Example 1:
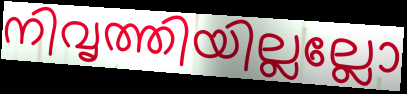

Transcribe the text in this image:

നിവൃത്തിയില്ലല്ലോ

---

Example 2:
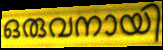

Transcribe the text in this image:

ഒരുവനായി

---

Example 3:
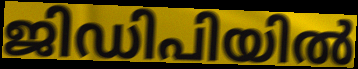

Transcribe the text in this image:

ജിഡിപിയിൽ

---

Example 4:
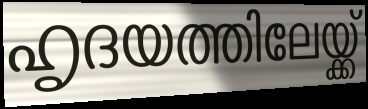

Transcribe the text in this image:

ഹൃദയത്തിലേയ്ക്ക്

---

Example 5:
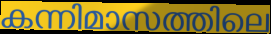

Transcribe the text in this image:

കന്നിമാസത്തിലെ